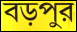
বড়পুর